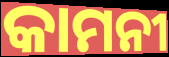
କାମନୀ